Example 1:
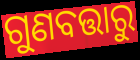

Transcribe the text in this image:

ଗୁଣବତ୍ତାରୁ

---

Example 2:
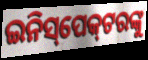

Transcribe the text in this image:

ଇନିସ୍‌ପେକ୍‌ଟରଙ୍କୁ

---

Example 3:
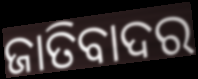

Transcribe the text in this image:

ଜାତିବାଦର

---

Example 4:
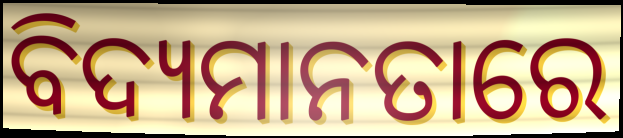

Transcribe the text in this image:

ବିଦ୍ୟମାନତାରେ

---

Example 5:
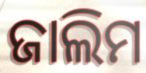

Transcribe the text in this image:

ଜାଲିମ